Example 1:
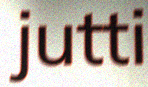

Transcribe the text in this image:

jutti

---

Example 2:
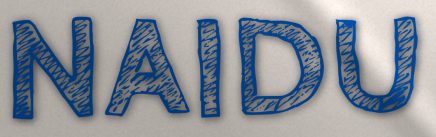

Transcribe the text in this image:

NAIDU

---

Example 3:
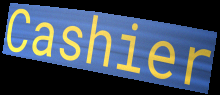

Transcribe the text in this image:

Cashier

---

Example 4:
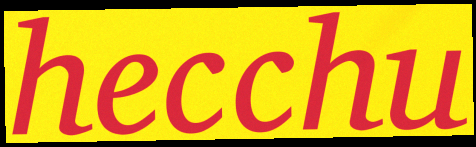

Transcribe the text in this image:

hecchu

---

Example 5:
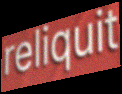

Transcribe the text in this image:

reliquit